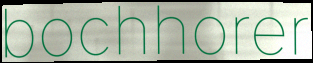
bochhorer